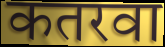
कतरवा